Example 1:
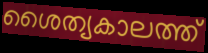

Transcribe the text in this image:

ശൈത്യകാലത്ത്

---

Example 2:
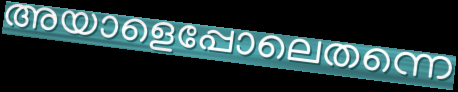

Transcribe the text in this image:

അയാളെപ്പോലെതന്നെ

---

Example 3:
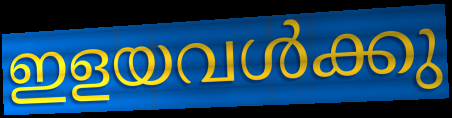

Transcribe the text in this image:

ഇളയവൾക്കു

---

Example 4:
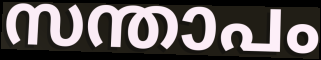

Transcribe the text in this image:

സന്താപം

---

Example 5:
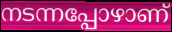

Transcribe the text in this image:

നടന്നപ്പോഴാണ്